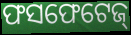
ଫସଫେଟେଜ୍